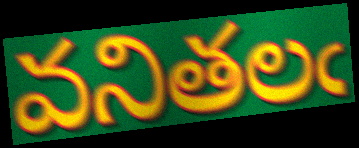
వనితలఁ